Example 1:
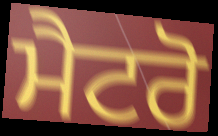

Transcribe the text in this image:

ਮੈਟਰੋ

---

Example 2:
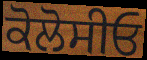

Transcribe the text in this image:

ਕੋਲੋਸੀਓ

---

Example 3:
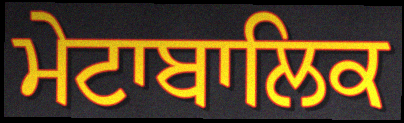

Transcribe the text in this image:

ਮੇਟਾਬਾਲਿਕ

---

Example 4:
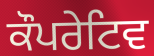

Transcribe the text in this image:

ਕੌਪਰੇਟਿਵ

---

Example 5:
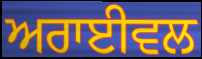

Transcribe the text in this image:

ਅਰਾਈਵਲ